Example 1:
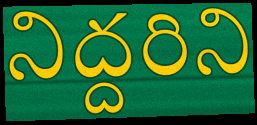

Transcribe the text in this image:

నిద్దరిని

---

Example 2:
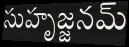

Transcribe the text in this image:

సుహృజ్జనమ్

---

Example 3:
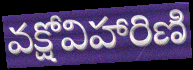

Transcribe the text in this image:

వక్షోవిహారిణి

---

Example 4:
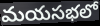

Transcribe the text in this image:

మయసభలో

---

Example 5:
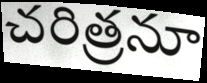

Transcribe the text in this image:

చరిత్రనూ